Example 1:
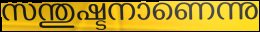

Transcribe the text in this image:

സന്തുഷ്ടനാണെന്നു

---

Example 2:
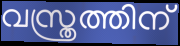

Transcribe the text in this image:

വസ്ത്രത്തിന്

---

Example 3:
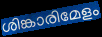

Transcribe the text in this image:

ശിങ്കാരിമേളം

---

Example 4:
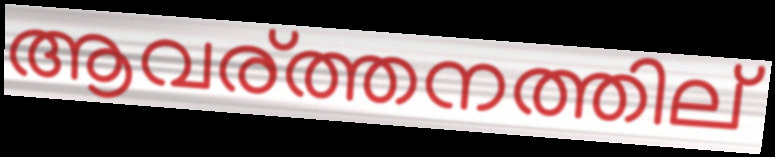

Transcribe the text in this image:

ആവര്ത്തനത്തില്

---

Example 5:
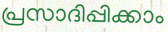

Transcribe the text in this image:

പ്രസാദിപ്പിക്കാം